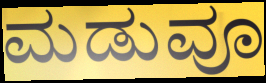
ಮಡುವೂ